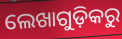
ଲେଖାଗୁଡ଼ିକରୁ